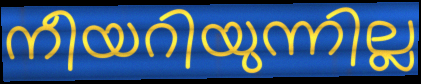
നീയറിയുന്നില്ല